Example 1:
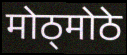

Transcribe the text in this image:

मोठ्मोठे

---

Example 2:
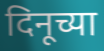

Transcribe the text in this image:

दिनूच्या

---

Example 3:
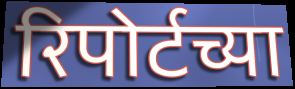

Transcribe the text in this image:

रिपोर्टच्या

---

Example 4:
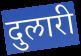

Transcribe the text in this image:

दुलारी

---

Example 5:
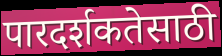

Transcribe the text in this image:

पारदर्शकतेसाठी